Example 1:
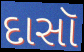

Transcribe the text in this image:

દાસૉ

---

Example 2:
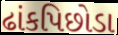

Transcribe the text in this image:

ઢાંકપિછોડા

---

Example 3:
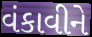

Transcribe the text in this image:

વંકાવીને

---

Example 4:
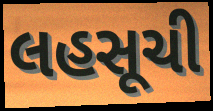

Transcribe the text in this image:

લહસૂચી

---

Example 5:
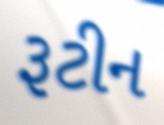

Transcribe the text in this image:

રૂટીન